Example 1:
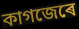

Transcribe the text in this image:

কাগজেৰে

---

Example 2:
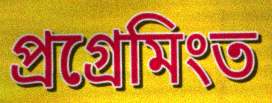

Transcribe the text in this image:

প্ৰগ্ৰেমিংত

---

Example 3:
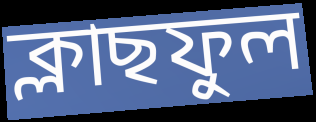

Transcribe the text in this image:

ক্লাছফুল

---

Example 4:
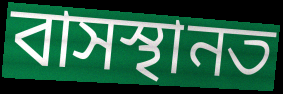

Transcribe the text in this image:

বাসস্থানত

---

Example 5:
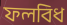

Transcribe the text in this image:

ফলবিধ